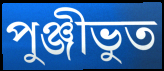
পুঞ্জীভুত